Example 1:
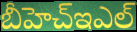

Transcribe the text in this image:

బీహెచ్ఇఎల్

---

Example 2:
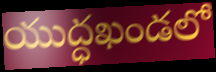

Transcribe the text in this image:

యుద్ధఖండలో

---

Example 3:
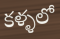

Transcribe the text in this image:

కళ్ళలో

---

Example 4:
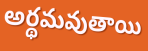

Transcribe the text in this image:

అర్థమవుతాయి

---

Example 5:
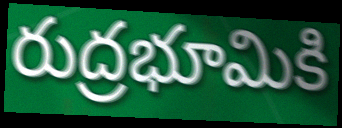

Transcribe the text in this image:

రుద్రభూమికి